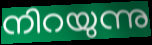
നിറയുന്നു